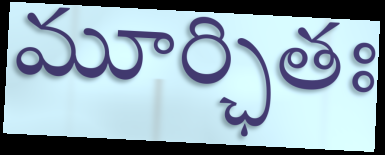
మూర్ఛితః